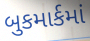
બુકમાર્કમાં